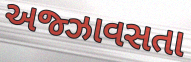
અજ્ઝાવસતા